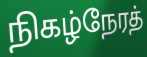
நிகழ்நேரத்